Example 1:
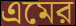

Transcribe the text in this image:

এমের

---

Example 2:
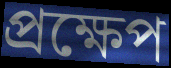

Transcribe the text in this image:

প্রক্ষেপ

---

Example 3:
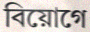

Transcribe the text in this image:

বিয়োগে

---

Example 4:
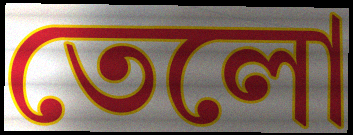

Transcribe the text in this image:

তেলো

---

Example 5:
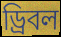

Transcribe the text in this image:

ড্রিবল